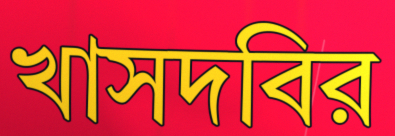
খাসদবির